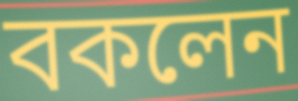
বকলেন